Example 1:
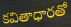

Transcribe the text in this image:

కవితాధారతో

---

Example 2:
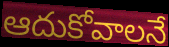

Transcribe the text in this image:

ఆదుకోవాలనే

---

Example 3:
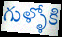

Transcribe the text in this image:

గుళ్ళోకి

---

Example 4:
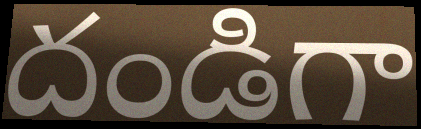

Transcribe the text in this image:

దండిగా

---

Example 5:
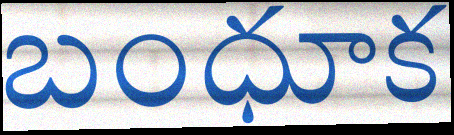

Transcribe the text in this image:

బంధూక